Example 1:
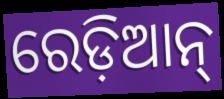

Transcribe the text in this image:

ରେଡ଼ିଆନ୍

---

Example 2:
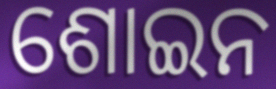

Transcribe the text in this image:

ଶୋଇନ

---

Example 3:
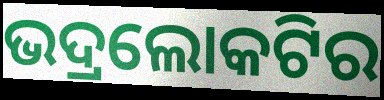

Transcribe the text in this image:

ଭଦ୍ରଲୋକଟିର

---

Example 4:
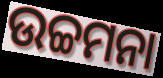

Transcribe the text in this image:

ଉଚ୍ଚମନା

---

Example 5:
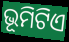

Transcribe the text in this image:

ଭୂମିଟିଏ